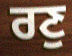
ਰਣੁ